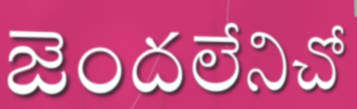
జెందలేనిచో